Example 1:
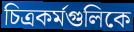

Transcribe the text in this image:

চিত্রকর্মগুলিকে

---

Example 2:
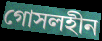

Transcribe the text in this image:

গোসলহীন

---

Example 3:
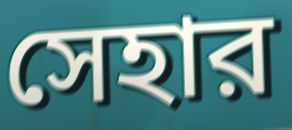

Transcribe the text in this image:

সেহার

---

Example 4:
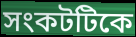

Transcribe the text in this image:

সংকটটিকে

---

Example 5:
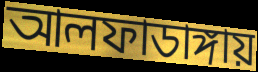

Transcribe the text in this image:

আলফাডাঙ্গায়